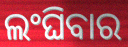
ଲଂଘିବାର